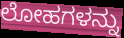
ಲೋಹಗಳನ್ನು